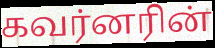
கவர்னரின்